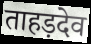
ताहड़देव